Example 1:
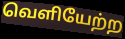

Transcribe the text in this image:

வெளியேற்ற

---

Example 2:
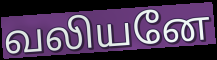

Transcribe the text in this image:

வலியனே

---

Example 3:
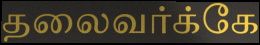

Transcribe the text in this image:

தலைவர்க்கே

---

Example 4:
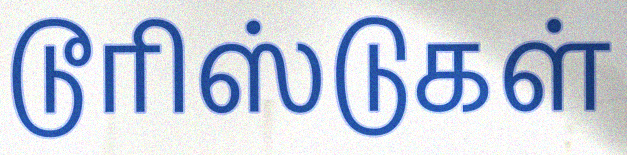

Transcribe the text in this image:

டூரிஸ்டுகள்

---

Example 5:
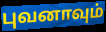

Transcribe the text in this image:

புவனாவும்